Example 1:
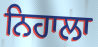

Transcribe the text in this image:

ਨਿਹਾਲਾ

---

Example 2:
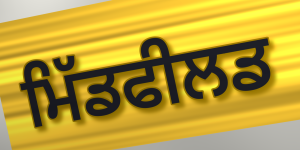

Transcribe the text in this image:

ਮਿੱਡਫੀਲਡ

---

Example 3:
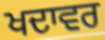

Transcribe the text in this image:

ਖਦਾਵਰ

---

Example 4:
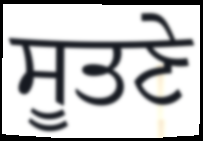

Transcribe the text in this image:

ਸੂਤਣੇ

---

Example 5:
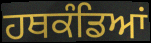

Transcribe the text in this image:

ਹਥਕੰਡਿਆਂ